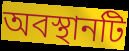
অবস্থানটি